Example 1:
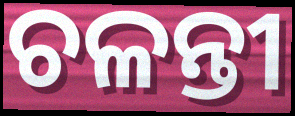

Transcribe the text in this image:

ଚଳନ୍ତୀ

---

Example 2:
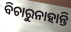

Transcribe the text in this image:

ବିଚାରୁନାହାନ୍ତି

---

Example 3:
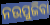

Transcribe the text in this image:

ନଉପୁଜିବା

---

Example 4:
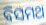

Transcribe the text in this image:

ବିସମଥ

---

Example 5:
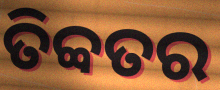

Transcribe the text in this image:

ତିବ୍ବତର